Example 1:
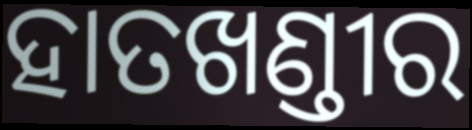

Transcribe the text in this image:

ହାତଖଣ୍ଡୀର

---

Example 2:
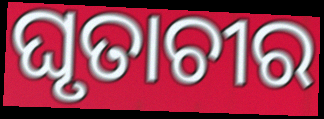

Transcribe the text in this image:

ଘୃତାଚୀର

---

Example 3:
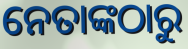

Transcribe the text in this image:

ନେତାଙ୍କଠାରୁ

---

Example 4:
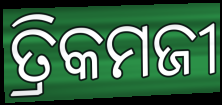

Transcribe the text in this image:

ତ୍ରିକମଜୀ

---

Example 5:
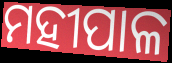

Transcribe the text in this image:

ମହୀପାଳ